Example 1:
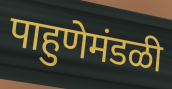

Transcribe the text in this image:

पाहुणेमंडळी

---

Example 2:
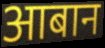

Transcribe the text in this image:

आबान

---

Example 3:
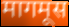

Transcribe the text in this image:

मागमूस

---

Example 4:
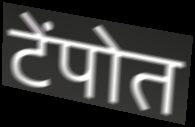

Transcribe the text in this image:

टेंपोत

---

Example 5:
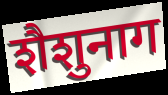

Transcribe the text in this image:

शैशुनाग